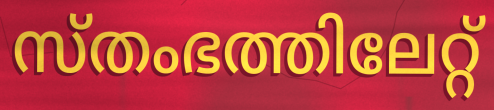
സ്തംഭത്തിലേറ്റ്